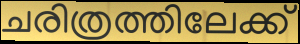
ചരിത്രത്തിലേക്ക്